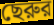
ছেরুর